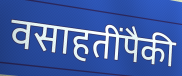
वसाहतींपैकी